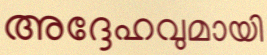
അദ്ദേഹവുമായി